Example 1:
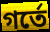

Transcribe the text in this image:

গর্তে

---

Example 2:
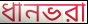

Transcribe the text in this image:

ধানভরা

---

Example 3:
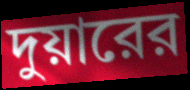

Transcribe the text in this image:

দুয়ারের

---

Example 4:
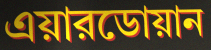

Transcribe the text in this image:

এয়ারডোয়ান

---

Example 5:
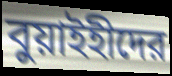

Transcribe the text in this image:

বুয়াইহীদের